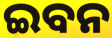
ଇବନ